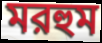
মরহুম